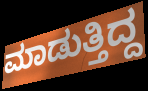
ಮಾಡುತ್ತಿದ್ದ